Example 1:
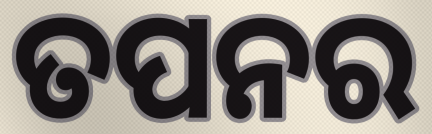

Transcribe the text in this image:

ତପନର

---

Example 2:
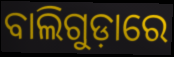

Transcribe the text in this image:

ବାଲିଗୁଡ଼ାରେ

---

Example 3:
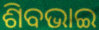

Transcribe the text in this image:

ଶିବଭାଇ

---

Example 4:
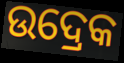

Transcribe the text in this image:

ଉଦ୍ରେକ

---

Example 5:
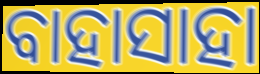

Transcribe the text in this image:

ବାହାସାହା